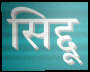
सिद्दू